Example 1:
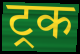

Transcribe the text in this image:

ट्रक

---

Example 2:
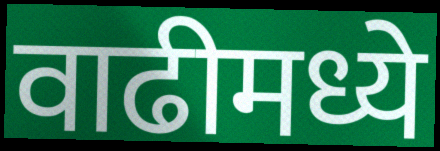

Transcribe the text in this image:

वाढीमध्ये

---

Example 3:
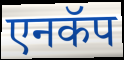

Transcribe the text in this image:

एनकॅप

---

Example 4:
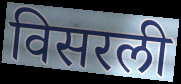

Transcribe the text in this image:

विसरली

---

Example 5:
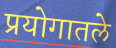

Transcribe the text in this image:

प्रयोगातले